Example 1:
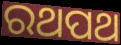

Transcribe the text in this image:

ରଥପଥ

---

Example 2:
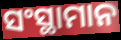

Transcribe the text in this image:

ସଂସ୍ଥାମାନ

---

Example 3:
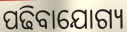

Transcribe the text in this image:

ପଢିବାଯୋଗ୍ୟ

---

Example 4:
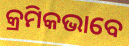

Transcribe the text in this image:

କ୍ରମିକଭାବେ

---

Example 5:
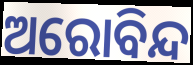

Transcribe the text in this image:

ଅରୋବିନ୍ଦ